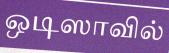
ஒடிஸாவில்